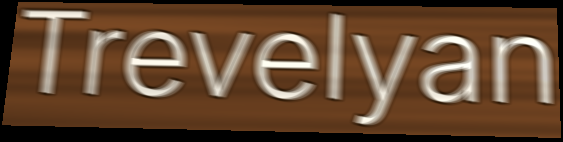
Trevelyan